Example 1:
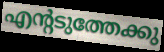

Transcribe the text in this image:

എന്റടുത്തേക്കു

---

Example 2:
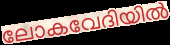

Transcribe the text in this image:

ലോകവേദിയിൽ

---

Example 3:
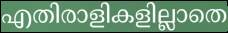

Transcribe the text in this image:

എതിരാളികളില്ലാതെ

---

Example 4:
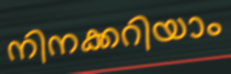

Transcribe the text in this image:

നിനക്കറിയാം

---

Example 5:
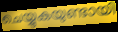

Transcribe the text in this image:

ചെയ്യുകയുണ്ടായി